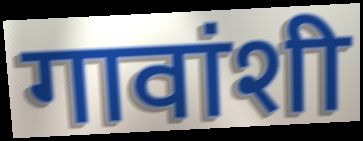
गावांशी